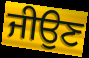
ਜੀਉਣ